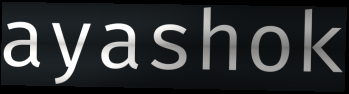
ayashok